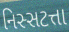
નિસ્સટત્તા